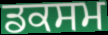
ਡਕਸਮ